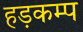
हड़कम्‍प